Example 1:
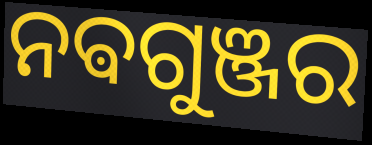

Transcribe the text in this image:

ନଵଗୁଞ୍ଜର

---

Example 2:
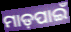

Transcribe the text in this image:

ମାଡ଼ପାଇଁ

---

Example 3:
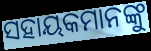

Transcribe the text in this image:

ସହାୟକମାନଙ୍କୁ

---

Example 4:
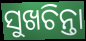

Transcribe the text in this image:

ସୁଖଚିନ୍ତା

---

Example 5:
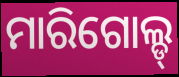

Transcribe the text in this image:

ମାରିଗୋଲ୍ଡ୍